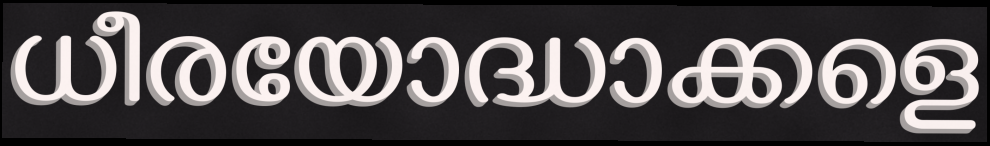
ധീരയോദ്ധാക്കളെ